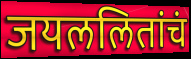
जयललितांचं